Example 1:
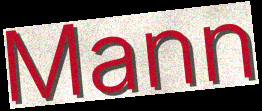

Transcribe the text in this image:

Mann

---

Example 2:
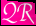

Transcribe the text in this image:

QR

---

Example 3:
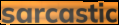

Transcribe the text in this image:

sarcastic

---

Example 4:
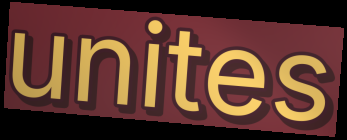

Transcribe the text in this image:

unites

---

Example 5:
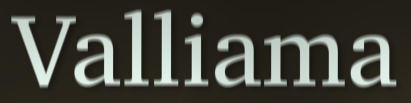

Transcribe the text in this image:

Valliama